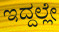
ಇದ್ದಲ್ಲೇ